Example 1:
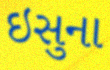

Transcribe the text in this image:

ઇસુના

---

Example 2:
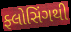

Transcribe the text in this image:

ફ્લોસિંગથી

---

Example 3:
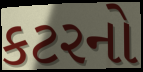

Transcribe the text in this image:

કટરનો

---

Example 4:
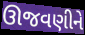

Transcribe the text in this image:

ઊજવણીને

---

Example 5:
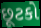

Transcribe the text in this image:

છૂટકો